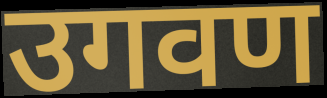
उगवण